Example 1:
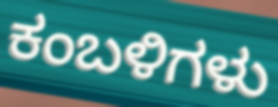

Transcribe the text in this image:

ಕಂಬಳಿಗಳು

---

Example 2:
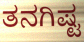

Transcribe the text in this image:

ತನಗಿಷ್ಟ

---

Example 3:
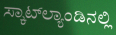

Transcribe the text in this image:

ಸ್ಕಾಟ್‌ಲ್ಯಾಂಡಿನಲ್ಲಿ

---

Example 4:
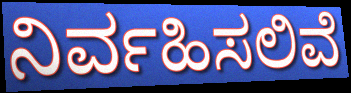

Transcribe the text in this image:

ನಿರ್ವಹಿಸಲಿವೆ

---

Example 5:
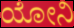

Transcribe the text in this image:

ಯೋನಿ